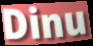
Dinu